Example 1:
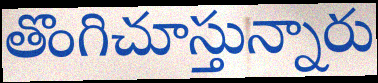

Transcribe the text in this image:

తొంగిచూస్తున్నారు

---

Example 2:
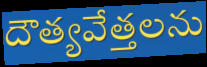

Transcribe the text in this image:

దౌత్యవేత్తలను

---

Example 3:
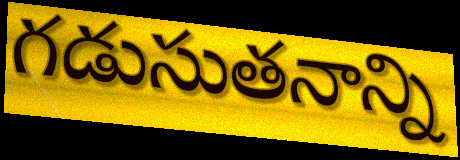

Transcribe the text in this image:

గడుసుతనాన్ని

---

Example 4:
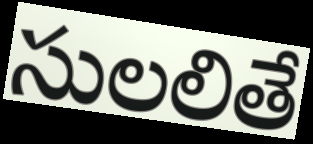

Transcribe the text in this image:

సులలితే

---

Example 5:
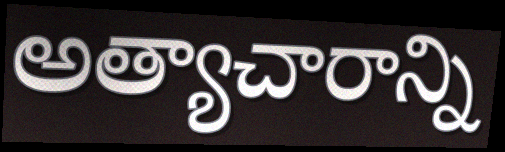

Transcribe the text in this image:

అత్యాచారాన్ని